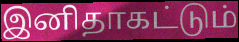
இனிதாகட்டும்